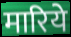
मारिये